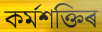
কৰ্মশক্তিৰ